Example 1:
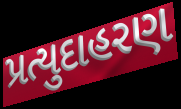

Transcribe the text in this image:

પ્રત્યુદાહરણ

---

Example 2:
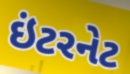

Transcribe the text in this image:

ઇંટરનેટ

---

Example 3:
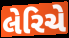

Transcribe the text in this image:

લેરિચે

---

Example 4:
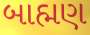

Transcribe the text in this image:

બાહ્મણ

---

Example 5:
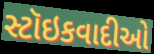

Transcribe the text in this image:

સ્ટૉઇકવાદીઓ